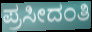
ಪ್ರಸೀದಂತಿ